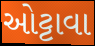
ઓટ્ટાવા